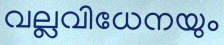
വല്ലവിധേനയും